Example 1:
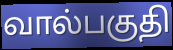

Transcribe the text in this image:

வால்பகுதி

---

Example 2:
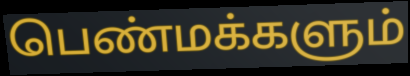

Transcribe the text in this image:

பெண்மக்களும்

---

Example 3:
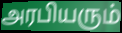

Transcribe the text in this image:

அரபியரும்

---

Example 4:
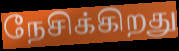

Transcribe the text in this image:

நேசிக்கிறது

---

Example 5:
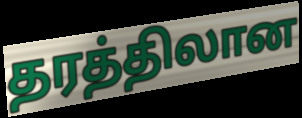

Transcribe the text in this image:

தரத்திலான